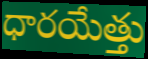
ధారయేత్తు